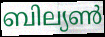
ബില്യൺ